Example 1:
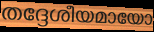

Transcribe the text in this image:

തദ്ദേശീയമായോ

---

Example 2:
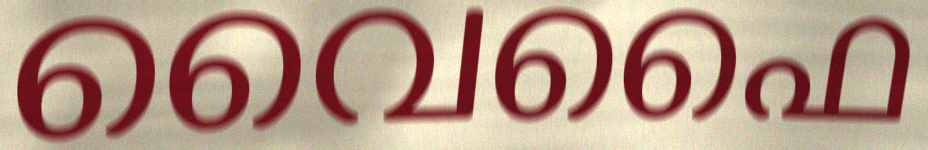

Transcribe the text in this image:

വൈഫൈ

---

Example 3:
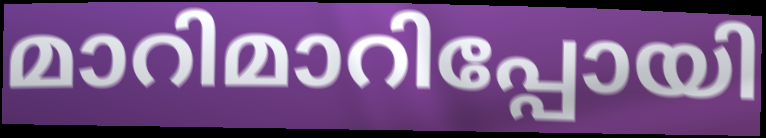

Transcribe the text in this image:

മാറിമാറിപ്പോയി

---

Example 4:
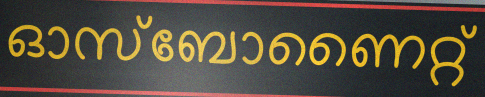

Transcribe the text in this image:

ഓസ്ബോണൈറ്റ്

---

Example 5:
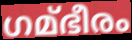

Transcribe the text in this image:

ഗമ്ഭീരം